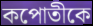
কপোতীকে